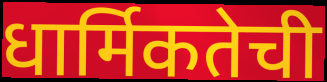
धार्मिकतेची